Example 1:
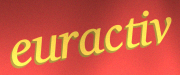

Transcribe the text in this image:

euractiv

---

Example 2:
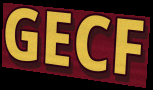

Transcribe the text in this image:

GECF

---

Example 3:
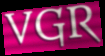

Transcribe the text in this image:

VGR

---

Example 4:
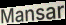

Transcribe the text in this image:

Mansar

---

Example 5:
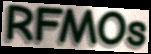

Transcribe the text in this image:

RFMOs